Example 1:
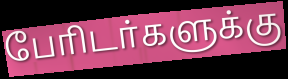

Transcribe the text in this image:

பேரிடர்களுக்கு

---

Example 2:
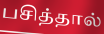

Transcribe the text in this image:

பசித்தால்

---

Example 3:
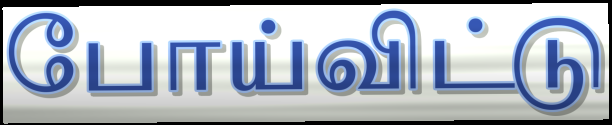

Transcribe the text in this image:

போய்விட்டு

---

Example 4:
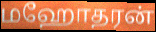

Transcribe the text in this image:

மஹோதரன்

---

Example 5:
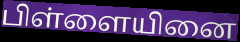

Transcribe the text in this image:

பிள்ளையினை